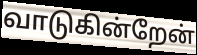
வாடுகின்றேன்